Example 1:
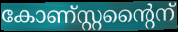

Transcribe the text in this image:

കോണ്സ്റ്റന്റൈന്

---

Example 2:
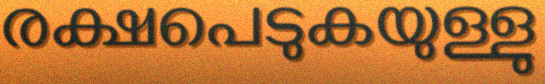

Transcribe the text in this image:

രക്ഷപെടുകയുള്ളു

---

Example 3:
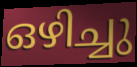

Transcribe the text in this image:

ഒഴിച്ചു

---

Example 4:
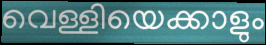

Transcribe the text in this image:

വെള്ളിയെക്കാളും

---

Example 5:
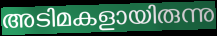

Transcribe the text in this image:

അടിമകളായിരുന്നു